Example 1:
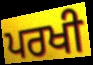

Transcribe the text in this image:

ਪਰਖੀ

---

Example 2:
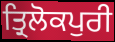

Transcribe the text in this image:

ਤ੍ਰਿਲੋਕਪੁਰੀ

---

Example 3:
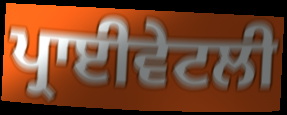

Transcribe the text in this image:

ਪ੍ਰਾਈਵੇਟਲੀ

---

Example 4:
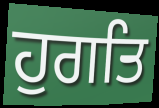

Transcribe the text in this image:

ਹੁਗਤਿ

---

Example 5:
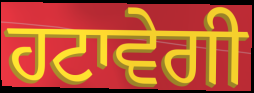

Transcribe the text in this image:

ਹਟਾਵੇਗੀ